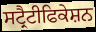
ਸਟ੍ਰੈਟੀਫਿਕੇਸ਼ਨ